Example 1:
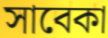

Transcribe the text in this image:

সাবেকা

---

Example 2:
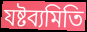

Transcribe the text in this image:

যষ্টব্যমিতি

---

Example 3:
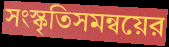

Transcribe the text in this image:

সংস্কৃতিসমন্বয়ের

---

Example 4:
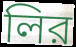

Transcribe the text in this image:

লির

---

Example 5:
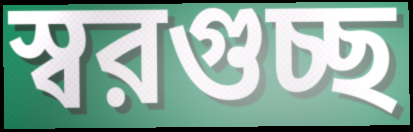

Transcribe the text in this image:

স্বরগুচ্ছ